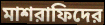
মাশরাফিদের